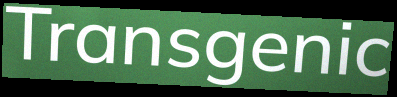
Transgenic